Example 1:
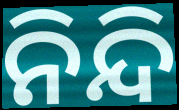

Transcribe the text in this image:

ନିନ୍ଦି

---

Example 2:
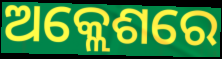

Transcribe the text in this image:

ଅକ୍ଲେଶରେ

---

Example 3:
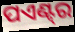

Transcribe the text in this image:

ପଏଣ୍ଟ୍‌ର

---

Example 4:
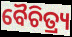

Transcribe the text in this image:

ବୈଚିତ୍ର୍ୟ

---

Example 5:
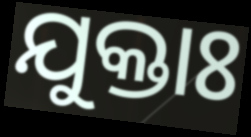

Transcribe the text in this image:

ଯୁକ୍ତାଃ